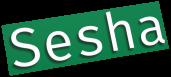
Sesha